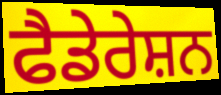
ਫੈਡੇਰੇਸ਼ਨ